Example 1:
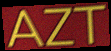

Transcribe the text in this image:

AZT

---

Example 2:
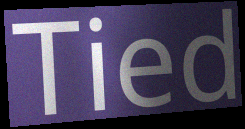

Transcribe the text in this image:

Tied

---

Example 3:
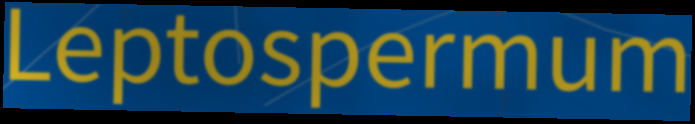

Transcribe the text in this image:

Leptospermum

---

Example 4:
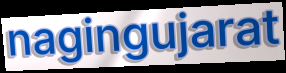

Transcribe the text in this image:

nagingujarat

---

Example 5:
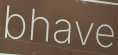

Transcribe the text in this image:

bhave